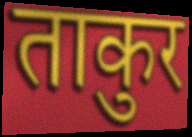
ताकुर